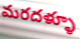
మరదళ్ళూ